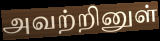
அவற்றினுள்